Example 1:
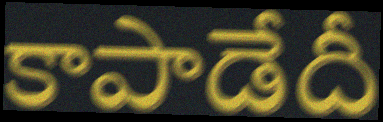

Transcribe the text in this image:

కాపాడేదీ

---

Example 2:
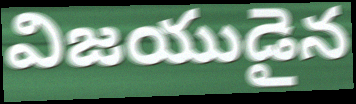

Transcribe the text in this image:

విజయుడైన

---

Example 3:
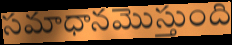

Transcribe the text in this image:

సమాధానమొస్తుంది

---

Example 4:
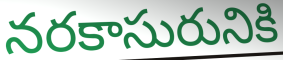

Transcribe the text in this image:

నరకాసురునికి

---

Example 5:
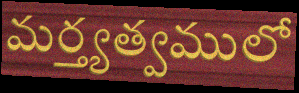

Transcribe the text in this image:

మర్త్యత్వములో